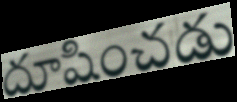
దూషించడు